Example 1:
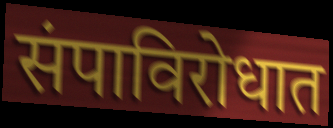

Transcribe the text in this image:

संपाविरोधात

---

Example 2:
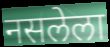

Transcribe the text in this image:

नसलेला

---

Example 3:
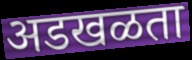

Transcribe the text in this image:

अडखळता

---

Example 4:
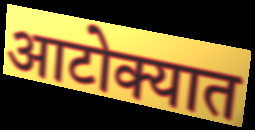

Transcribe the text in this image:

आटोक्यात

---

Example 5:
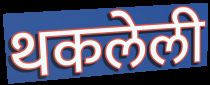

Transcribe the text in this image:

थकलेली